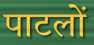
पाटलों